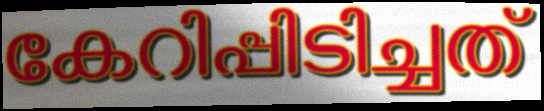
കേറിപ്പിടിച്ചത്